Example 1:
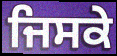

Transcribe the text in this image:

ਜਿਸਕੇ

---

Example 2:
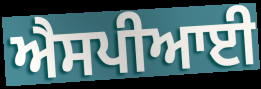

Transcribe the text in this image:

ਐਸਪੀਆਈ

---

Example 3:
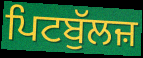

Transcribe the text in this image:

ਪਿਟਬੁੱਲਜ਼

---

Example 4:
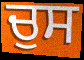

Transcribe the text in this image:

ਚੁਸ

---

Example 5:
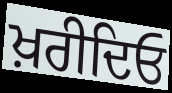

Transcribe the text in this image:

ਖ਼ਰੀਦਿਓ